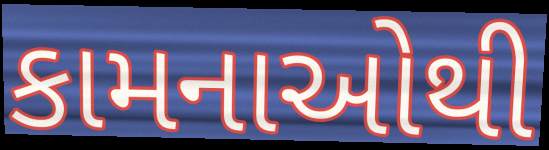
કામનાઓથી